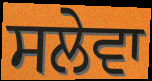
ਸਲੇਵਾ